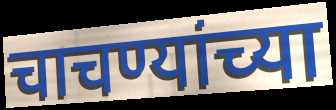
चाचण्यांच्या